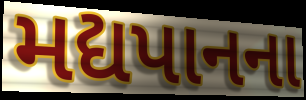
મદ્યપાનના